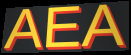
AEA